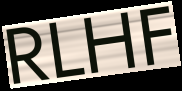
RLHF